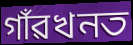
গাঁৱখনত